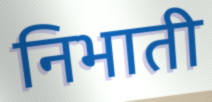
निभाती